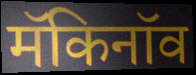
मॅकिनॉव